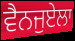
ਵੈਨਜੁਏਲਾ